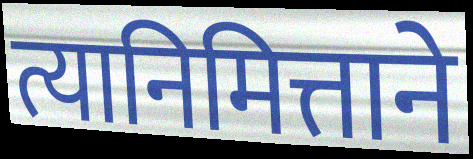
त्यानिमित्ताने